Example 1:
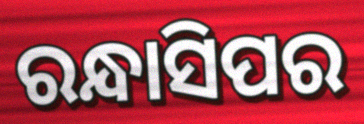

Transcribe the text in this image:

ରନ୍ଧାସିପର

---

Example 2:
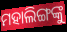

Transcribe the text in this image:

ମହାଲିଙ୍ଗଙ୍କୁ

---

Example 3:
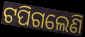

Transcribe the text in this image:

ଟପିଗଲେଣି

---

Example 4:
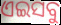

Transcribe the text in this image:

ଏଇସବୁ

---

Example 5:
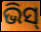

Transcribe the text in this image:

ଭିସ୍